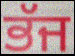
ਭੱਜ